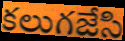
కలుగజేసి